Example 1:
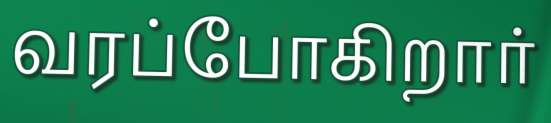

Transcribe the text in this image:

வரப்போகிறார்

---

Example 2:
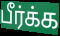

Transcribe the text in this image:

பீர்க்க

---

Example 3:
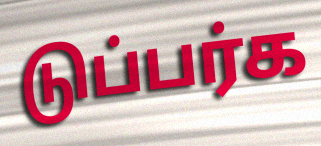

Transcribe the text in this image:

டுப்பர்க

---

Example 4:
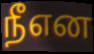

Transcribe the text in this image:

நீஎன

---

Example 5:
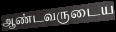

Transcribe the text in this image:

ஆண்டவருடைய